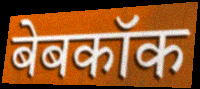
बेबकॉक